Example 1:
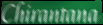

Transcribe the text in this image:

Chirantana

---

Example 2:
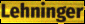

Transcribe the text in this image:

Lehninger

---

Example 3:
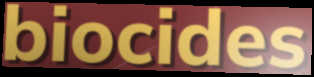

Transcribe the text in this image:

biocides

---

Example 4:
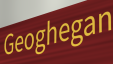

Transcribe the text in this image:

Geoghegan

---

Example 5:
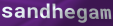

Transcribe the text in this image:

sandhegam